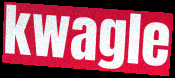
kwagle